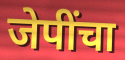
जेपींचा